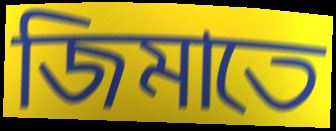
জিমাতে